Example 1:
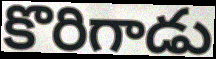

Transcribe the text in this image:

కొరిగాడు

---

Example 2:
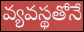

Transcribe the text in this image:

వ్యవస్థతోనే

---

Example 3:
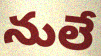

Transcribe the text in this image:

నులే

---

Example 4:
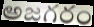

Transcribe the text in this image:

అజగరం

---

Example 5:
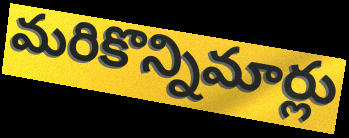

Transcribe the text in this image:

మరికొన్నిమార్లు